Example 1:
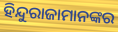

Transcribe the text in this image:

ହିନ୍ଦୁରାଜାମାନଙ୍କର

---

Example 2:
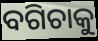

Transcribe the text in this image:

ବଗିଚାକୁ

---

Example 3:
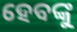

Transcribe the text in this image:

ହେବଙ୍କୁ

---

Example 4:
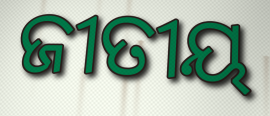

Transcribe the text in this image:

ଜୀତୀୟ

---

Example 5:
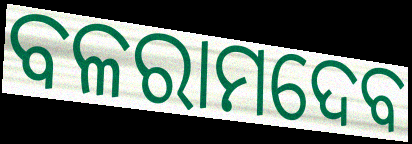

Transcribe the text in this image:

ବଳରାମଦେବ